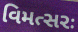
વિમત્સરઃ